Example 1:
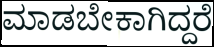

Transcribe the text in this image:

ಮಾಡಬೇಕಾಗಿದ್ದರೆ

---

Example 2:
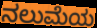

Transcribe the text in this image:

ನಲುಮೆಯ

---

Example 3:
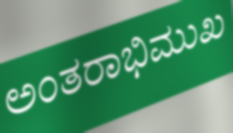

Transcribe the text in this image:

ಅಂತರಾಭಿಮುಖ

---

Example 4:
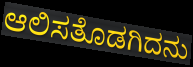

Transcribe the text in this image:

ಆಲಿಸತೊಡಗಿದನು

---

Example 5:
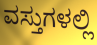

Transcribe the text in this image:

ವಸ್ತುಗಳಲ್ಲಿ